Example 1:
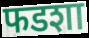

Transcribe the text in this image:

फडशा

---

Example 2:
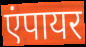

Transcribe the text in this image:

एंपायर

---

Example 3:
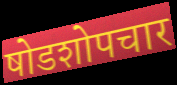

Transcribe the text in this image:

षोडशोपचार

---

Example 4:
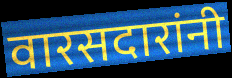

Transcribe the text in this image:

वारसदारांनी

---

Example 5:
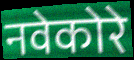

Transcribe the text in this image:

नवेकोरे